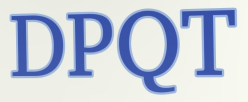
DPQT